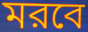
মরবে